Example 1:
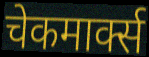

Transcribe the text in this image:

चेकमार्क्स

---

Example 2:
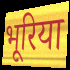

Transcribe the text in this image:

भूरिया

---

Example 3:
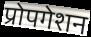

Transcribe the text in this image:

प्रोपगेशन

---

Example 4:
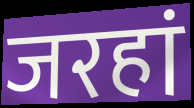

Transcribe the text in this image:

जरहां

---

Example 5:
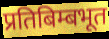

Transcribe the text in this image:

प्रतिबिम्बभूत